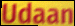
Udaan